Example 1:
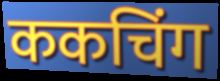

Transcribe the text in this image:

ककचिंग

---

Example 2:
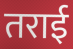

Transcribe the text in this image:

तराई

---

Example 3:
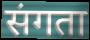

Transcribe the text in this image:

संगता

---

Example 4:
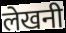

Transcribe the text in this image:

लेखनी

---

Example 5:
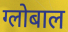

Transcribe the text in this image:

ग्लोबाल